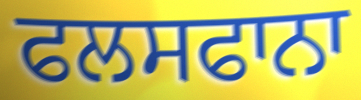
ਫਲਸਫਾਨਾ